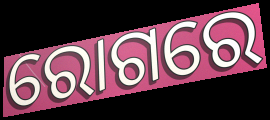
ରୋଗରେ